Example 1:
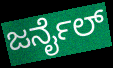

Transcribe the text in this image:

ಜರ್ನೈಲ್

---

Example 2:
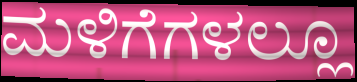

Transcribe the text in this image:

ಮಳಿಗೆಗಳಲ್ಲೂ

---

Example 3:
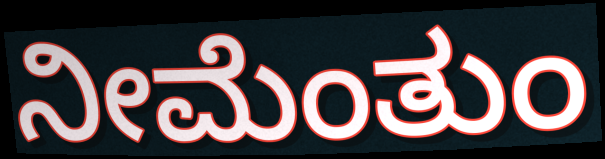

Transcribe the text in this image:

ನೀಮೆಂತುಂ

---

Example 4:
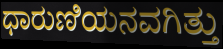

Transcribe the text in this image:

ಧಾರುಣಿಯನವಗಿತ್ತು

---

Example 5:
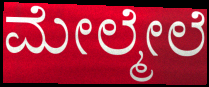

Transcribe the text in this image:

ಮೇಲ್ಮೇಲೆ